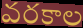
వరకాల